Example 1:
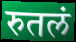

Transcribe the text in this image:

रुतलं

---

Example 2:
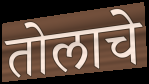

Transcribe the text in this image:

तोलाचे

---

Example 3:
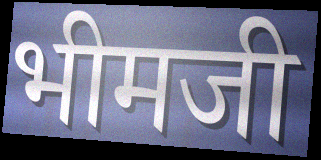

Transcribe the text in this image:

भीमजी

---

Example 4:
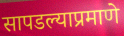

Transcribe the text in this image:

सापडल्याप्रमाणे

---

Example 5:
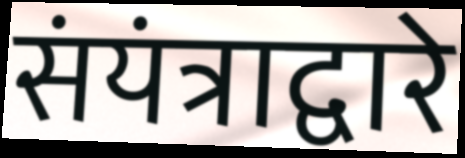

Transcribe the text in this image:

संयंत्राद्वारे